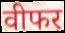
वीफर